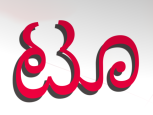
ಟೂ